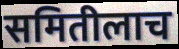
समितीलाच